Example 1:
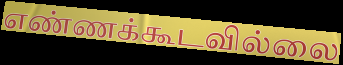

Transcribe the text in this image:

எண்ணக்கூடவில்லை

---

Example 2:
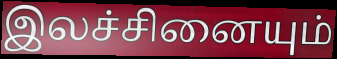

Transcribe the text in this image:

இலச்சினையும்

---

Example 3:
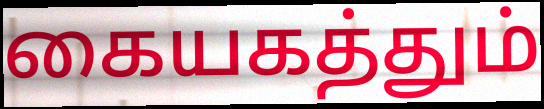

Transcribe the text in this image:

கையகத்தும்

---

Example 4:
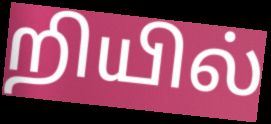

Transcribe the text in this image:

றியில்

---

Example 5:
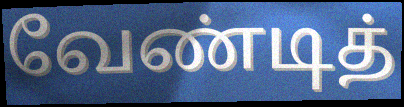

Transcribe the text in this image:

வேண்டித்